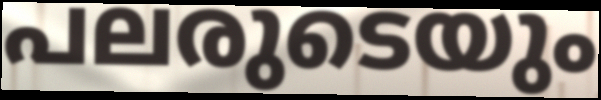
പലരുടെയും